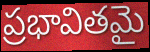
ప్రభావితమై